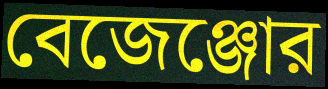
বেজেঞ্জোর